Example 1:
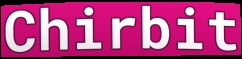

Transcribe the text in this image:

Chirbit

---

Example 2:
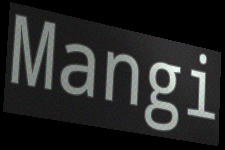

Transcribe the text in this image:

Mangi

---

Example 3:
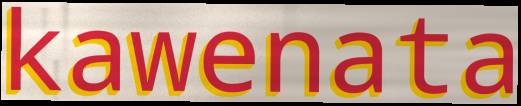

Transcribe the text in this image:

kawenata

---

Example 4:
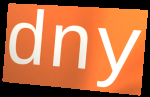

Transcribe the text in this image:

dny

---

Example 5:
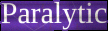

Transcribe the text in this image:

Paralytic